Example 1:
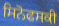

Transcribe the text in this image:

ਸਿਨੋਫਸਕੀ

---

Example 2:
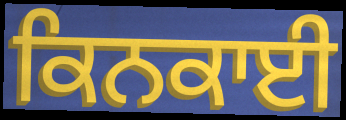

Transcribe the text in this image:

ਕਿਨਕਾਈ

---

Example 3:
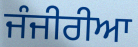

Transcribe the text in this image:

ਜੰਜੀਰੀਆ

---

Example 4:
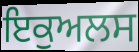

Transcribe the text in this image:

ਇਕੁਅਲਸ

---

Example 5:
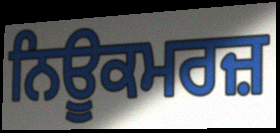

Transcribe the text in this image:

ਨਿਊਕਮਰਜ਼